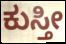
ಕುಸ್ತೀ